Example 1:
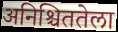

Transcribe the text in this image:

अनिश्चिततेला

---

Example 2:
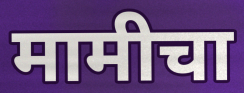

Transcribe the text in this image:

मामीचा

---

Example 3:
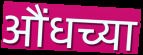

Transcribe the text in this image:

औंधच्या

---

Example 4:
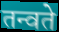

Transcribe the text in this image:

तन्वते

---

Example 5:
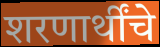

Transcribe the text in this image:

शरणार्थींचे